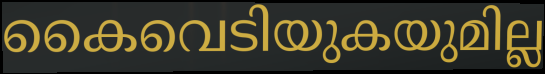
കൈവെടിയുകയുമില്ല